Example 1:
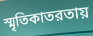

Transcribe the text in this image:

স্মৃতিকাতরতায়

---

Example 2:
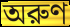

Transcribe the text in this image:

অরুণ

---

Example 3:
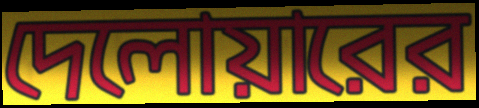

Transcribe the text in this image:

দেলোয়ারের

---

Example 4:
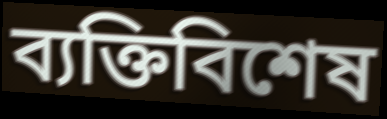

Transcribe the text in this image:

ব্যক্তিবিশেষ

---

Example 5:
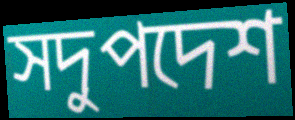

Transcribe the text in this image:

সদুপদেশ